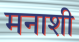
मनाशी